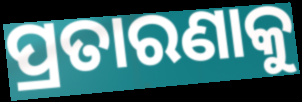
ପ୍ରତାରଣାକୁ